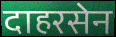
दाहरसेन